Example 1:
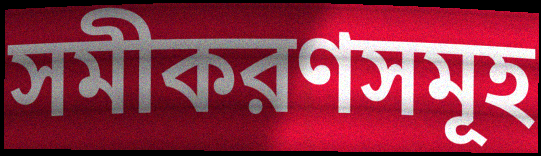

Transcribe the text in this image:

সমীকরণসমূহ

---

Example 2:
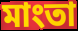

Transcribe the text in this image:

মাংতা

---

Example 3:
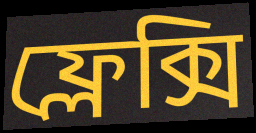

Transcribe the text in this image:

ফ্লেক্সি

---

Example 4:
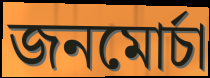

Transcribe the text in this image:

জনমোর্চা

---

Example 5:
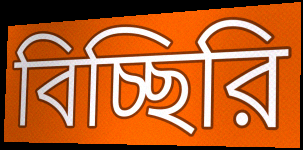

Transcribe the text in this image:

বিচ্ছিরি